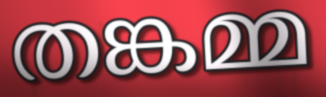
തങ്കമ്മ